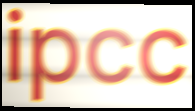
ipcc